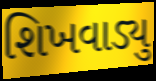
શિખવાડ્યુ